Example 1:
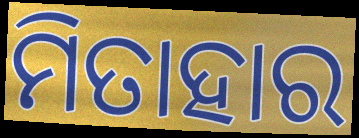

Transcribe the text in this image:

ମିତାହାର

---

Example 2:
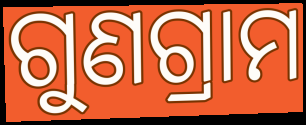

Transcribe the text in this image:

ଗୁଣଗ୍ରାମ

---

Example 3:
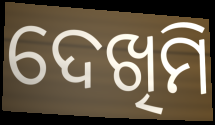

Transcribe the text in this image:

ଦେଖିମି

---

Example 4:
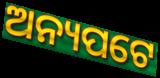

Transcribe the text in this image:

ଅନ୍ୟପଟେ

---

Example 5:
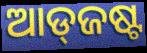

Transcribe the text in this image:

ଆଡ୍‌ଜଷ୍ଟ